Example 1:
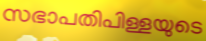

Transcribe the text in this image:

സഭാപതിപിള്ളയുടെ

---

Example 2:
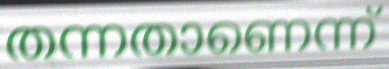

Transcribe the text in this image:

തന്നതാണെന്ന്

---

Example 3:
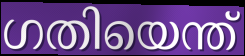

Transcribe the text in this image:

ഗതിയെന്ത്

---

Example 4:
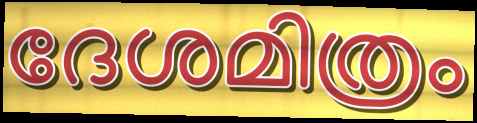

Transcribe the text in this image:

ദേശമിത്രം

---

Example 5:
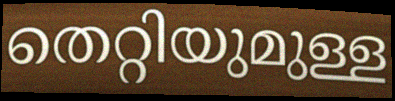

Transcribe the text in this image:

തെറ്റിയുമുള്ള